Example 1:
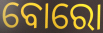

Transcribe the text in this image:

ବୋରୋ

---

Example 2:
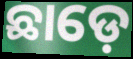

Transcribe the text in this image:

ଛାଡ଼େ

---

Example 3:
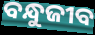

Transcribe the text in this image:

ବନ୍ଧୁଜୀବ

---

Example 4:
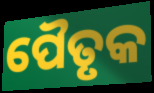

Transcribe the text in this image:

ପୈତୃକ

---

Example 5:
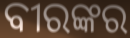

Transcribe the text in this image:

ବୀରଙ୍କର